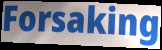
Forsaking